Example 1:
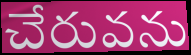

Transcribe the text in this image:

చేరువను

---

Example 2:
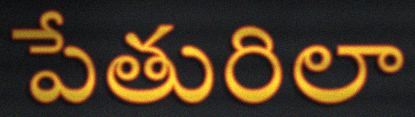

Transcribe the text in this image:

పేతురిలా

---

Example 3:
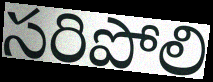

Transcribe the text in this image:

సరిపోలి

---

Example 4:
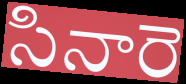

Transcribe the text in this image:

సినారె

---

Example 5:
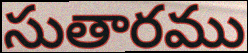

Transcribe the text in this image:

సుతారము